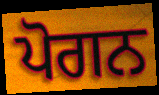
ਪੋਗਨ